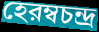
হেরম্বচন্দ্র